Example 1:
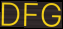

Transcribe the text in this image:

DFG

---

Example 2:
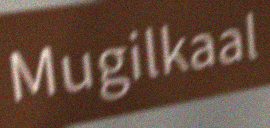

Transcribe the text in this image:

Mugilkaal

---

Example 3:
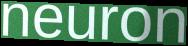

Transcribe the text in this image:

neuron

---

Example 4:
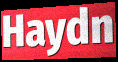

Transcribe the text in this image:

Haydn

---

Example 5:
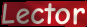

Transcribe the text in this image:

Lector